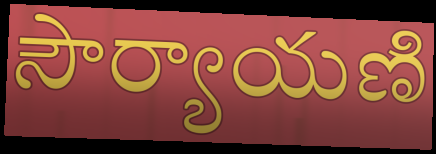
సౌర్యాయణి